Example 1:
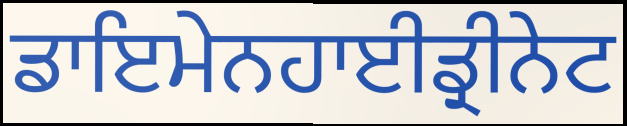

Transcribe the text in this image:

ਡਾਇਮੇਨਹਾਈਡ੍ਰੀਨੇਟ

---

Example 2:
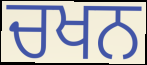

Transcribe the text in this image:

ਚਖਨ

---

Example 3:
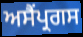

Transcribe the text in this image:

ਅਸੈਂਪ੍ਰਗਸ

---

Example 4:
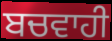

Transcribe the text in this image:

ਬਚਵਾਹੀ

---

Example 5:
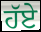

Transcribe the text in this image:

ਹੱਏ